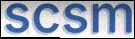
scsm